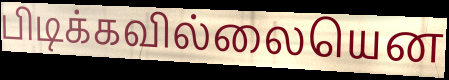
பிடிக்கவில்லையென